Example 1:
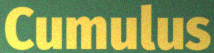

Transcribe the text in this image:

Cumulus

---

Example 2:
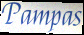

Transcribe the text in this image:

Pampas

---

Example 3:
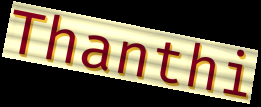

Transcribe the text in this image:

Thanthi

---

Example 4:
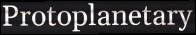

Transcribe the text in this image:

Protoplanetary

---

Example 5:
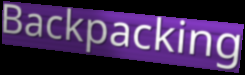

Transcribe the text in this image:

Backpacking